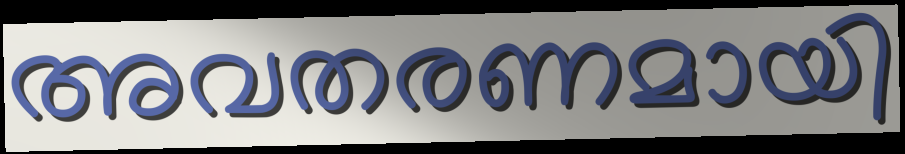
അവതരണമായി